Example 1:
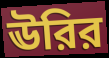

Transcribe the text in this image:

ঊরির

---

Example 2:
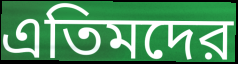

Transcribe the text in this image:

এতিমদের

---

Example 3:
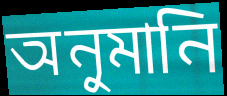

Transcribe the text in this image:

অনুমানি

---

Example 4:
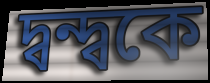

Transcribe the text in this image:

দ্বন্দ্বকে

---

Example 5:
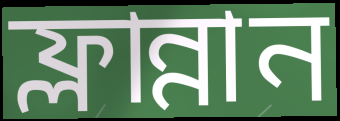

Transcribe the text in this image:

ফ্লান্নান